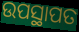
ଉପସ୍ଥାପତ